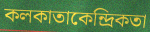
কলকাতাকেন্দ্রিকতা